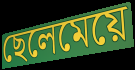
ছেলেমেয়ে